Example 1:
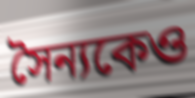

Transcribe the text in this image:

সৈন্যকেও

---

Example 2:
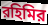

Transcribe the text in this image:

রহিমির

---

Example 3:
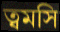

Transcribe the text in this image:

ত্বমসি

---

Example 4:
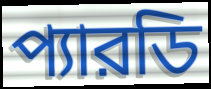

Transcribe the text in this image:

প্যারডি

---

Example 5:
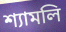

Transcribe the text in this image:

শ্যামলি